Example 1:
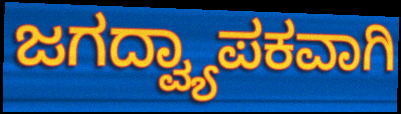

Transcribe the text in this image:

ಜಗದ್ವ್ಯಾಪಕವಾಗಿ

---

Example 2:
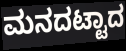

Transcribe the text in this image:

ಮನದಟ್ಟಾದ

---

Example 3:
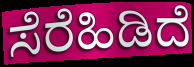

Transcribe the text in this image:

ಸೆರೆಹಿಡಿದೆ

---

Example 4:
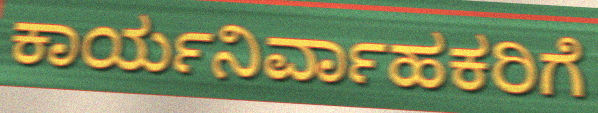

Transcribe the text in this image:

ಕಾರ್ಯನಿರ್ವಾಹಕರಿಗೆ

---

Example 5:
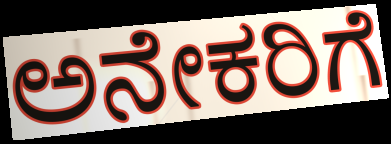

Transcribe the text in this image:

ಅನೇಕರಿಗೆ